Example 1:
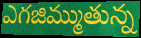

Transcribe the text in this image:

ఎగజిమ్ముతున్న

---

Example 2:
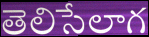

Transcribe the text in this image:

తెలిసేలాగ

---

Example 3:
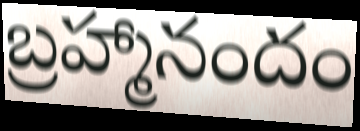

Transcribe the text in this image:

బ్రహ్మానందం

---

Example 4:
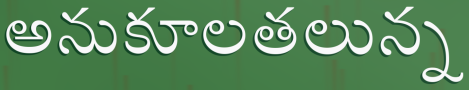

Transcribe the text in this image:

అనుకూలతలున్న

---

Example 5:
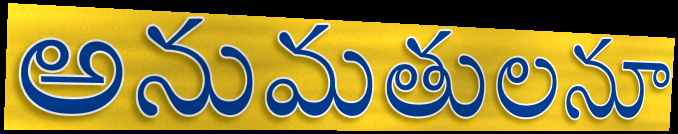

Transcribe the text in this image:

అనుమతులనూ